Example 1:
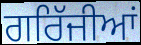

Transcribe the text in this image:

ਗਰਿੱਜੀਆਂ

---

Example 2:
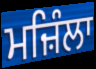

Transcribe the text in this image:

ਮਜ਼ਿੰਲਾ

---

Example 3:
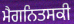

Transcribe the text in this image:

ਮੈਗਨਿਤਸਕੀ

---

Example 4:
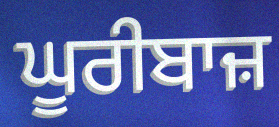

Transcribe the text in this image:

ਘੂਰੀਬਾਜ਼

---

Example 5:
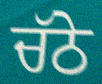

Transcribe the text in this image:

ਚੱਠੇ